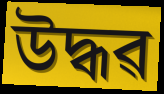
উদ্ধৱ